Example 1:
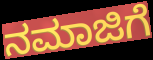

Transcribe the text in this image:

ನಮಾಜಿಗೆ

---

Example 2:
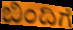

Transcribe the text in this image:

ಬಿಂದಿಗೆ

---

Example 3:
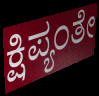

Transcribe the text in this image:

ಕ್ಷಿಪ್ಯಂತೇ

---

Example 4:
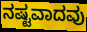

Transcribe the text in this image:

ನಷ್ಟವಾದವು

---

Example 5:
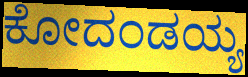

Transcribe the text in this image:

ಕೋದಂಡಯ್ಯ